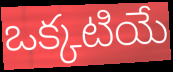
ఒక్కటియే